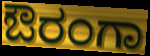
ಔರಂಗಾ